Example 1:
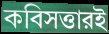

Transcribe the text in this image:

কবিসত্তারই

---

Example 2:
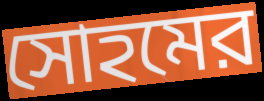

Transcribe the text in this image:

সোহমের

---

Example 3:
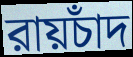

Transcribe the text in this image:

রায়চাঁদ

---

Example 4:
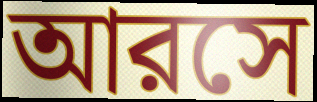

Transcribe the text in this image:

আরসে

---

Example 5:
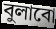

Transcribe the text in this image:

বুলাবো